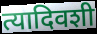
त्यादिवशी